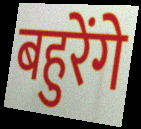
बहुरेंगे